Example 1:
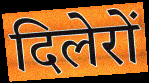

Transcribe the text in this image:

दिलेरों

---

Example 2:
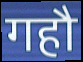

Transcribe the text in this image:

गहौ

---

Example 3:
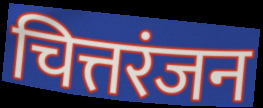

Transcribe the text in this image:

चित्तरंजन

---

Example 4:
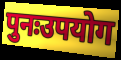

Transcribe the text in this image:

पुनःउपयोग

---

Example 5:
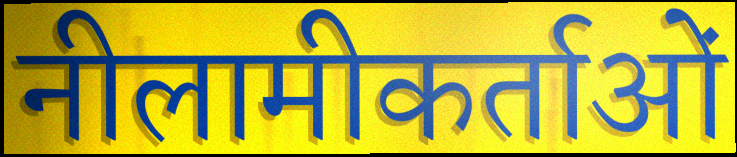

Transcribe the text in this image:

नीलामीकर्ताओं